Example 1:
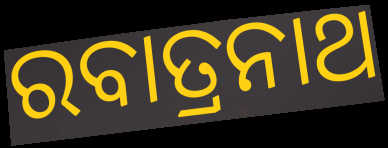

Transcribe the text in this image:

ରବାତ୍ରନାଥ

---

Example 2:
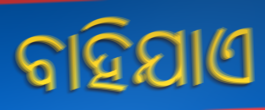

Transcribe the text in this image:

ବାହିଯାଏ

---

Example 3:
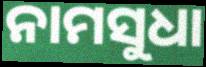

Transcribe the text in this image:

ନାମସୁଧା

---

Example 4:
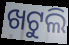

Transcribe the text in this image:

ଖଟୁଲି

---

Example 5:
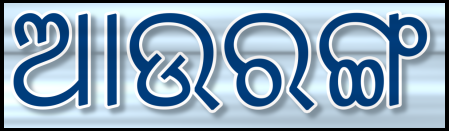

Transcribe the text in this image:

ଆଉରଙ୍ଗ